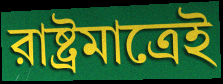
রাষ্ট্রমাত্রেই